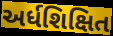
અર્ધશિક્ષિત